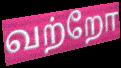
வற்றோ